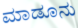
ಮಾಡೂನು